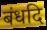
बंधदि